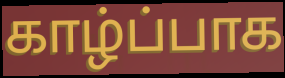
காழ்ப்பாக